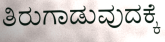
ತಿರುಗಾಡುವುದಕ್ಕೆ